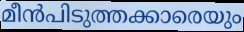
മീൻപിടുത്തക്കാരെയും